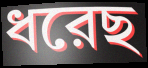
ধরেছ